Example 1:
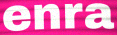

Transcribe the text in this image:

enra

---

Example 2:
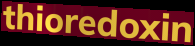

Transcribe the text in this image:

thioredoxin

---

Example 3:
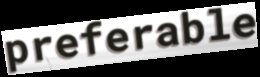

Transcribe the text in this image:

preferable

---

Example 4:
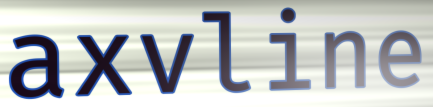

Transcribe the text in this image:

axvline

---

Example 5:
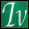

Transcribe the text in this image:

Iv